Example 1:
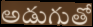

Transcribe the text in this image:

అడుగుతో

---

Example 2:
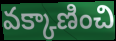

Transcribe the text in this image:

వక్కాణించి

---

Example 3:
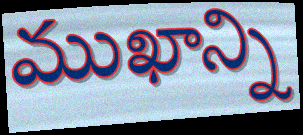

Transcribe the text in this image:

ముఖాన్ని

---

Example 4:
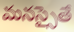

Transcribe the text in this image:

మనస్సైతే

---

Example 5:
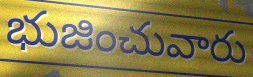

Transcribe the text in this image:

భుజించువారు